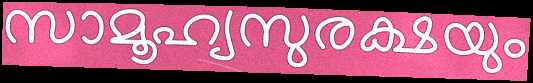
സാമൂഹ്യസുരക്ഷയും